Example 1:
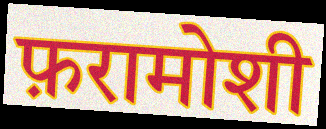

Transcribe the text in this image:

फ़रामोशी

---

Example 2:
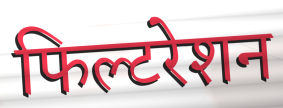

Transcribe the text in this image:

फिल्टरेशन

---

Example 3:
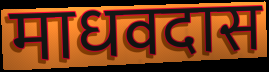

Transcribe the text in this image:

माधवदास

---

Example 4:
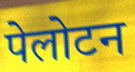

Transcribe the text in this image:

पेलोटन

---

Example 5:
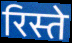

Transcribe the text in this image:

रिस्ते